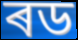
ৰড